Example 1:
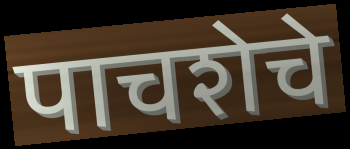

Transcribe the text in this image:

पाचशेचे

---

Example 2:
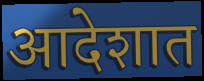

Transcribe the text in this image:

आदेशात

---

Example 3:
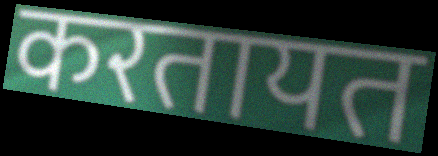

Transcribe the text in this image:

करतायत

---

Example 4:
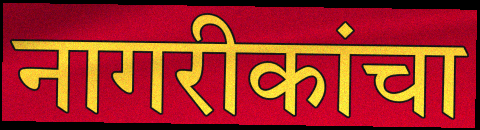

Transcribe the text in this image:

नागरीकांचा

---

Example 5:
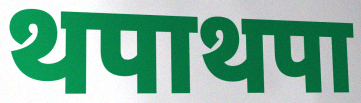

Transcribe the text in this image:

थपाथपा